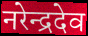
नरेन्द्रदेव